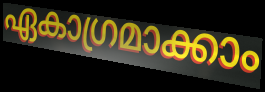
ഏകാഗ്രമാക്കാം